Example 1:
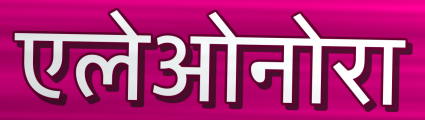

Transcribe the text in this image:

एलेओनोरा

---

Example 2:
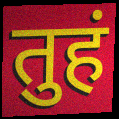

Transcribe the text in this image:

तुहं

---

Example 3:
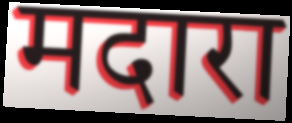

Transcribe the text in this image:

मदारा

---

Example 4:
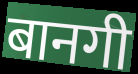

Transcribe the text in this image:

बानगी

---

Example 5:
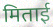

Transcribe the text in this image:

मिताई